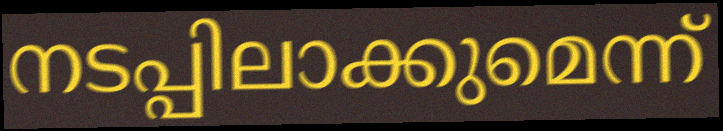
നടപ്പിലാക്കുമെന്ന്